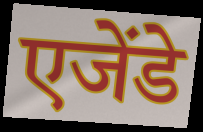
एजेंडे